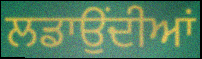
ਲਡਾਉਂਦੀਆਂ